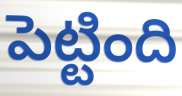
పెట్టింది